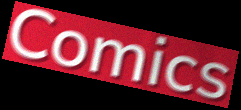
Comics